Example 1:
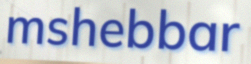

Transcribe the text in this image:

mshebbar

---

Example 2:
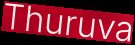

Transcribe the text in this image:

Thuruva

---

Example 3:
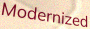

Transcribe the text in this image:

Modernized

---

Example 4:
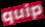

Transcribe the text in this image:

quip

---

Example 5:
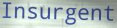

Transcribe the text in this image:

Insurgent